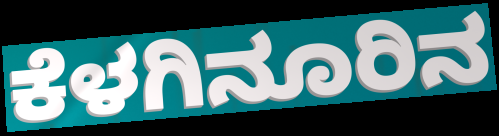
ಕೆಳಗಿನೂರಿನ